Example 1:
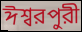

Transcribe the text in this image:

ঈশ্বরপুরী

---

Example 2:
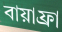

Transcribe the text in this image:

বায়াফ্রা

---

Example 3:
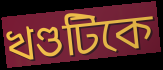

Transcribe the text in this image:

খণ্ডটিকে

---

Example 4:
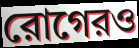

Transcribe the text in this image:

রোগেরও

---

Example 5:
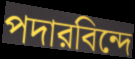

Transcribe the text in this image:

পদারবিন্দে